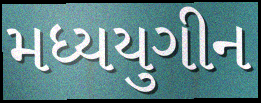
મધ્યયુગીન